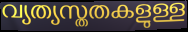
വ്യത്യസ്തതകളുള്ള